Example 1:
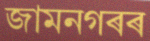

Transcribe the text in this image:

জামনগৰৰ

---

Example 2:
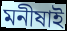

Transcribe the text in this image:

মনীষাই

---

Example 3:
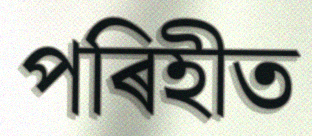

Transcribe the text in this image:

পৰিহীত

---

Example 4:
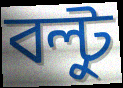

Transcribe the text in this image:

বল্টু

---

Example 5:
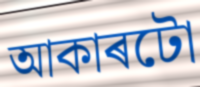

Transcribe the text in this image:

আকাৰটো